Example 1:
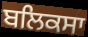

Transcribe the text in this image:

ਬਲਿਕਸਾ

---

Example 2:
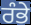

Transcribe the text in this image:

ਰੰਭੇ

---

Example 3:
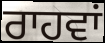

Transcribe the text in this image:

ਰਾਹਵਾਂ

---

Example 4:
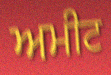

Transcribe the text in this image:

ਅਮੀਟ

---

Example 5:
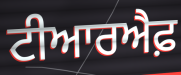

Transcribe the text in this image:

ਟੀਆਰਐਫ਼